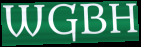
WGBH